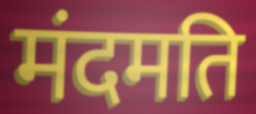
मंदमति